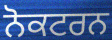
ਨੋਕਟਰਨ